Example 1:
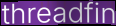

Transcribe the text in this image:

threadfin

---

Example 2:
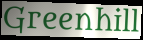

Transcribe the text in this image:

Greenhill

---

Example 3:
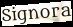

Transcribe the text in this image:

Signora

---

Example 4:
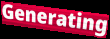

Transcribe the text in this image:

Generating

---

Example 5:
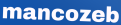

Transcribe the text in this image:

mancozeb